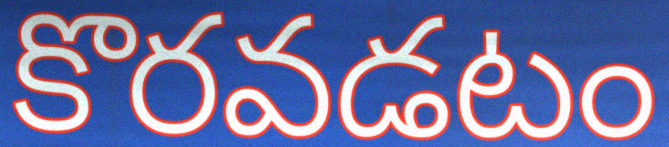
కొరవడటం